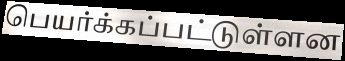
பெயர்க்கப்பட்டுள்ளன